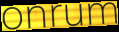
onrum